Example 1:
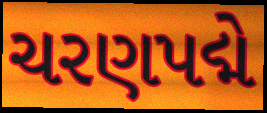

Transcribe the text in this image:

ચરણપદ્મે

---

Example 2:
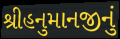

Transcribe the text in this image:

શ્રીહનુમાનજીનું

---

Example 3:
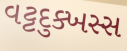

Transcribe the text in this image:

વટ્ટદુક્ખસ્સ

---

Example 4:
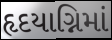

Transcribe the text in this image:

હૃદયાગ્નિમાં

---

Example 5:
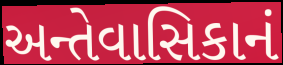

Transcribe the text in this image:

અન્તેવાસિકાનં